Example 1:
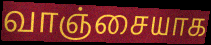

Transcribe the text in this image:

வாஞ்சையாக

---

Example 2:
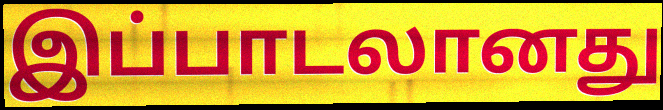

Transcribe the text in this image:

இப்பாடலானது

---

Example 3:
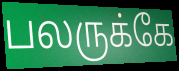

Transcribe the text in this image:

பலருக்கே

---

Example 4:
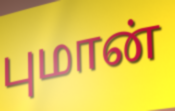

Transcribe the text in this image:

புமான்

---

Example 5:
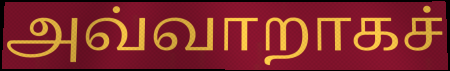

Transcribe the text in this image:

அவ்வாறாகச்